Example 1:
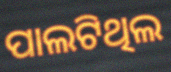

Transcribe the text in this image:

ପାଲଟିଥିଲ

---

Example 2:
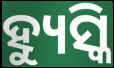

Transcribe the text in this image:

ହ୍ୟୁସ୍କି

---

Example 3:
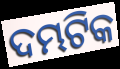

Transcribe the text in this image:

ଦମ୍ଭଟିକ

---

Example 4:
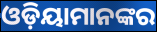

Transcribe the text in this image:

ଓଡ଼ିୟାମାନଙ୍କର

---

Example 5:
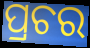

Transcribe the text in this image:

ପ୍ରଚର